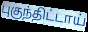
புகுந்திட்டாய்